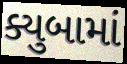
ક્યુબામાં